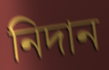
নিদান